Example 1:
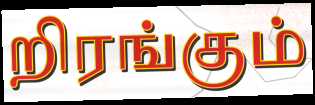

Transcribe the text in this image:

றிரங்கும்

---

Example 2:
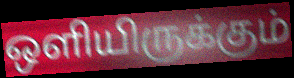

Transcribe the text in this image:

ஒளியிருக்கும்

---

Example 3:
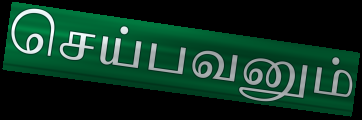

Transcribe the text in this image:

செய்பவனும்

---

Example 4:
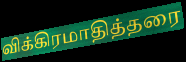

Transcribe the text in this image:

விக்கிரமாதித்தரை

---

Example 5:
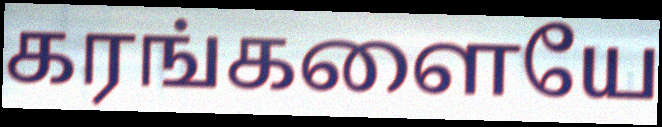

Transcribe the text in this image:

கரங்களையே